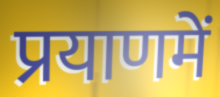
प्रयाणमें